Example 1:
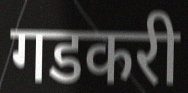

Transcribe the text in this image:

गडकरी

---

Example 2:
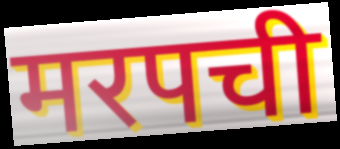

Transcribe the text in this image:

मरपची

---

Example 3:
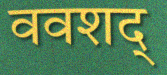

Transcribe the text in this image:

ववशद्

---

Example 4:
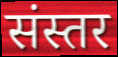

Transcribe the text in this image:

संस्तर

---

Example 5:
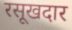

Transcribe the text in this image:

रसूखदार